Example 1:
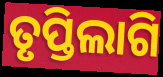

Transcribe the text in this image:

ତୃପ୍ତିଲାଗି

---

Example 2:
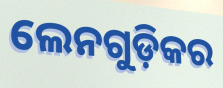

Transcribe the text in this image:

ଲେନଗୁଡ଼ିକର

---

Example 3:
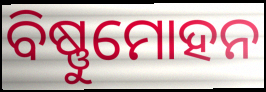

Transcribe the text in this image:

ବିଷ୍ଣୁମୋହନ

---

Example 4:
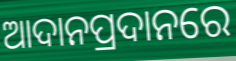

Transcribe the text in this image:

ଆଦାନପ୍ରଦାନରେ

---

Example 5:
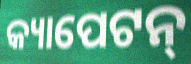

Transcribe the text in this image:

କ୍ୟାପେଟନ୍